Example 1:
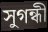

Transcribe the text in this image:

সুগন্ধী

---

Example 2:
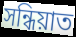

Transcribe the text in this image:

সন্ধিয়াত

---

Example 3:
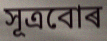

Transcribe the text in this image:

সূত্ৰবোৰ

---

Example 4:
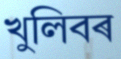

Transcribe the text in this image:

খুলিবৰ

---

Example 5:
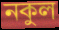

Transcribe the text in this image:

নকুল